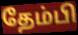
தேம்பி